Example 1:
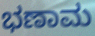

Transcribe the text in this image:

ಭಣಾಮ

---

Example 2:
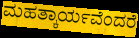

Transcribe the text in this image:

ಮಹತ್ಕಾರ್ಯವೆಂದರೆ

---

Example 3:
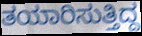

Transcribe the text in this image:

ತಯಾರಿಸುತ್ತಿದ್ದ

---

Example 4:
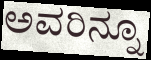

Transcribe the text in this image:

ಅವರಿನ್ನೂ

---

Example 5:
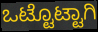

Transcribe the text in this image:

ಒಟ್ಟೊಟ್ಟಾಗಿ